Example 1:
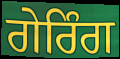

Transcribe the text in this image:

ਗੇਰਿੰਗ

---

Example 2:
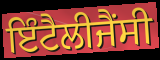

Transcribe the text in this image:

ਇੰਟੈਲੀਜੈਂਸੀ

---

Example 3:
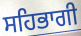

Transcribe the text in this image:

ਸਹਿਭਾਗੀ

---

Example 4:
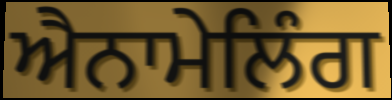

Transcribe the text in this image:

ਐਨਾਮੇਲਿੰਗ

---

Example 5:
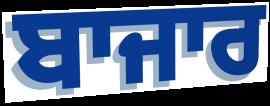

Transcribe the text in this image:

ਬਾਜਾਰ